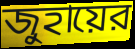
জুহায়ের